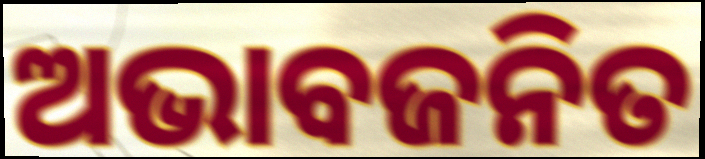
ଅଭାବଜନିତ